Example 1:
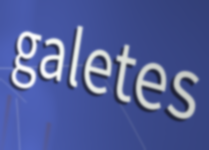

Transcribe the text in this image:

galetes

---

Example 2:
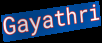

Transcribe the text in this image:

Gayathri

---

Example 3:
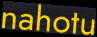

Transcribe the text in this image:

nahotu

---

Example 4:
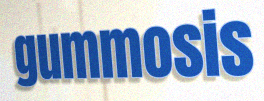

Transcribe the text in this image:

gummosis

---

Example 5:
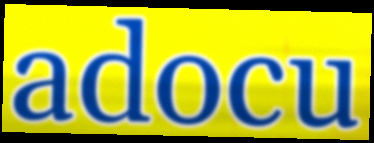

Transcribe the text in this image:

adocu